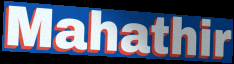
Mahathir